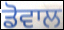
ਡੋਵਾਲ